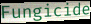
Fungicide